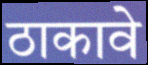
ठाकावे